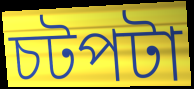
চটপটা